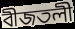
বীজতলী